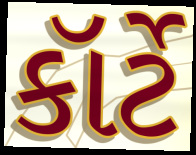
કૉર્ટે